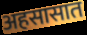
अहसासात